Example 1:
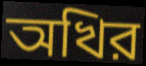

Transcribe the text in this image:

অখির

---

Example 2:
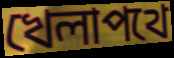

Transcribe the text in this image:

খেলাপথে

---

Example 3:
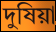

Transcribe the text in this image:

দুষিয়া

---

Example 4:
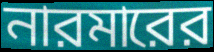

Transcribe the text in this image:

নারমারের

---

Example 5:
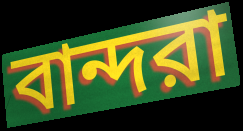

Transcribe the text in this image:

বান্দরা